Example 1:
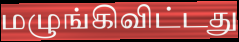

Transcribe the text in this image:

மழுங்கிவிட்டது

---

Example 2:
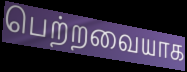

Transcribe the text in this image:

பெற்றவையாக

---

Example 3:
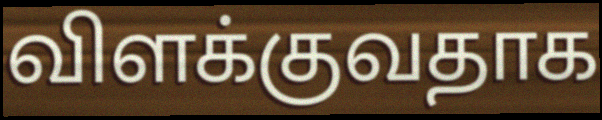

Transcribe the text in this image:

விளக்குவதாக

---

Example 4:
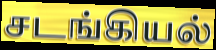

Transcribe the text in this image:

சடங்கியல்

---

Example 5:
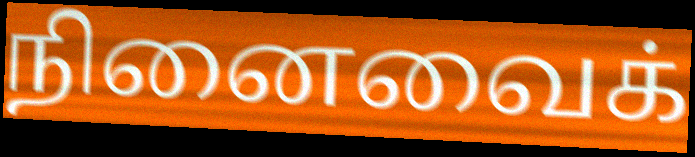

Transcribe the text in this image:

நினைவைக்